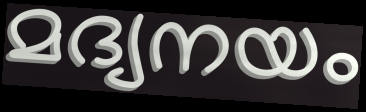
മദ്യനയം